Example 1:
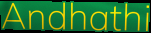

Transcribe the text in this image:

Andhathi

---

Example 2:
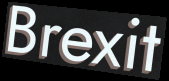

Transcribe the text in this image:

Brexit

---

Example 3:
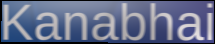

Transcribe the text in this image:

Kanabhai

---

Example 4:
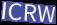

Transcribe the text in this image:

ICRW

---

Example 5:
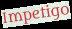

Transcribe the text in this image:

Impetigo